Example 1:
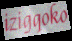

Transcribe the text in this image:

izigqoko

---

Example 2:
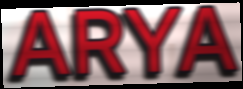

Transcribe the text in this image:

ARYA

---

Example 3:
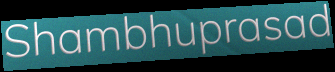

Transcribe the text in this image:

Shambhuprasad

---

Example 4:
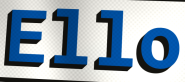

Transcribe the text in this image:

Ello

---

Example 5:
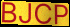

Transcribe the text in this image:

BJCP